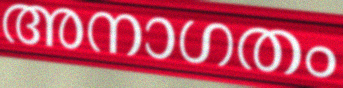
അനാഗതം